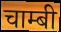
चाम्बी